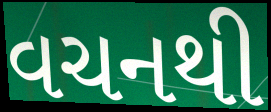
વચનથી